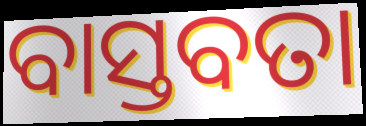
ବାସ୍ତବତା